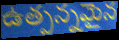
ఉత్పన్నమైన